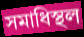
সমাধিস্থল